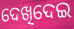
ଦେଖିଦେଇ